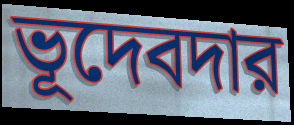
ভূদেবদার